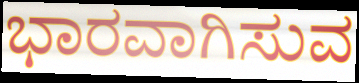
ಭಾರವಾಗಿಸುವ